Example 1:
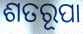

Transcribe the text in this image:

ଶତରୂପା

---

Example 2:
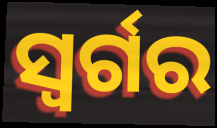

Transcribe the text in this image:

ସ୍ୱର୍ଗର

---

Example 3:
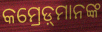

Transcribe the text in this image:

କମ୍ରେଡ଼୍‌ମାନଙ୍କ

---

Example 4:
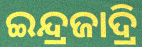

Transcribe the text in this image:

ଇନ୍ଦ୍ରଜାଦ୍ରି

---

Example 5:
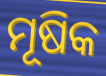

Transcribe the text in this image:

ମୂଷିକ